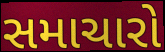
સમાચારો